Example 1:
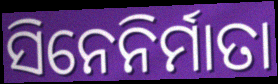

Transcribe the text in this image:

ସିନେନିର୍ମାତା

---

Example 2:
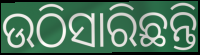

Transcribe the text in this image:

ଉଠିସାରିଛନ୍ତି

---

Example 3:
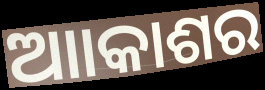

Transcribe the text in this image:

ଆାକାଶର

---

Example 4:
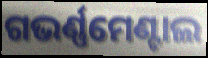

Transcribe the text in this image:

ଗଭର୍ଣ୍ଣମେଣ୍ଟାଲ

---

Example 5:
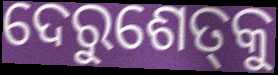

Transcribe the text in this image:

ଦେରୁଶେତ୍‌କୁ